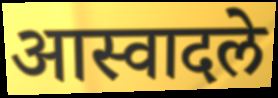
आस्वादले